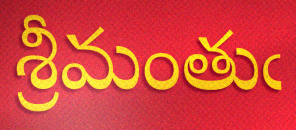
శ్రీమంతుఁ